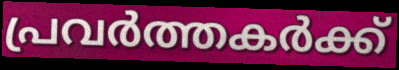
പ്രവർത്തകർക്ക്